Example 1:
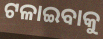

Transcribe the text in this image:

ଟଳାଇବାକୁ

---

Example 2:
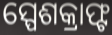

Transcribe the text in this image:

ସ୍ପେଶକ୍ରାଫ୍ଟ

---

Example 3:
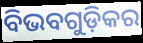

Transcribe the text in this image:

ବିଭବଗୁଡ଼ିକର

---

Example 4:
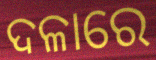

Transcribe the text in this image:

ଦଳାରେ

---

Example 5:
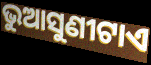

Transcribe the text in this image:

ଭୁଆସୁଣୀଟାଏ